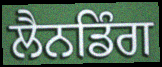
ਲੈਨਡਿੰਗ